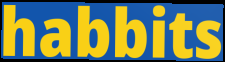
habbits